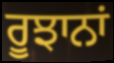
ਰੂਝਾਨਾਂ